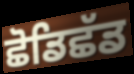
ਛੋਡਿਛੱਡ